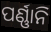
ପର୍ଣ୍ଣାନି